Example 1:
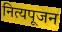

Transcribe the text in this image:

नित्यपूजन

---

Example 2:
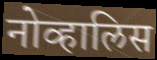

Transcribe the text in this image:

नोव्हालिस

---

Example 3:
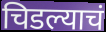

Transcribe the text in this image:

चिडल्याचं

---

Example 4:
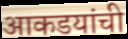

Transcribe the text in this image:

आकडयांची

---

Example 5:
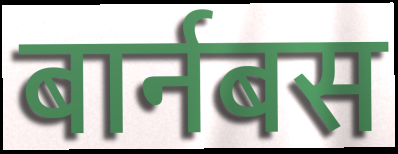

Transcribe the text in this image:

बार्नबस